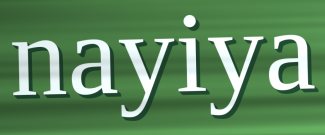
nayiya